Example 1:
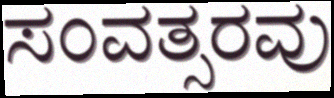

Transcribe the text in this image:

ಸಂವತ್ಸರವು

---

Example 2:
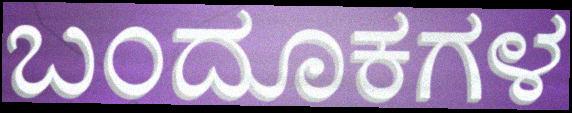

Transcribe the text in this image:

ಬಂದೂಕಗಳ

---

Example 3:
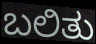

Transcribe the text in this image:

ಬಲಿತು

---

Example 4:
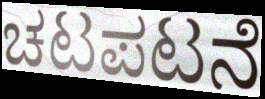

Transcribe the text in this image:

ಚಟಪಟನೆ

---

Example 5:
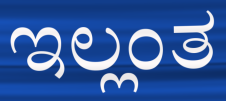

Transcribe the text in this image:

ಇಲ್ಲಂತ